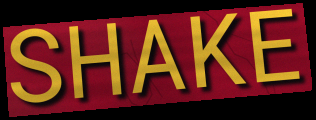
SHAKE